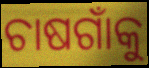
ଚାଷଗାଁକୁ